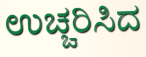
ಉಚ್ಚರಿಸಿದ